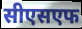
सीएसएफ